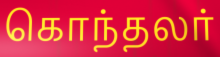
கொந்தலர்